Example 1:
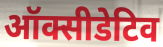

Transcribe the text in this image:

ऑक्सीडेटिव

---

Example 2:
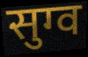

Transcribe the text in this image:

सुग्व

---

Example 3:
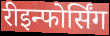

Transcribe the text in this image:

रीइन्फोर्सिंग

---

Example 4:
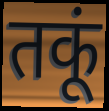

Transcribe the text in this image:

तकूं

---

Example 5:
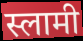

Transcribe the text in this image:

स्लामी